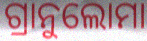
ଗ୍ରାନୁଲୋମା